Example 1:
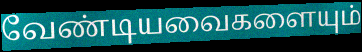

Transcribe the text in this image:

வேண்டியவைகளையும்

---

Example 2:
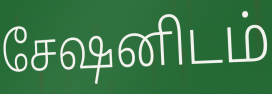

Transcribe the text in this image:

சேஷனிடம்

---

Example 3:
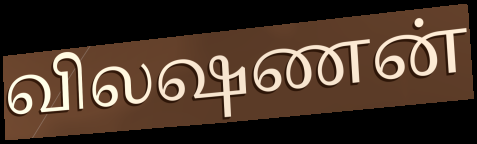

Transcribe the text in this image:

விலஷணன்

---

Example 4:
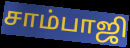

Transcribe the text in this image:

சாம்பாஜி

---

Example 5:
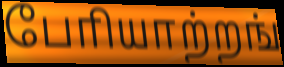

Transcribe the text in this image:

பேரியாற்றங்